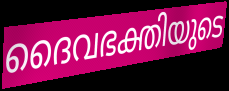
ദൈവഭക്തിയുടെ